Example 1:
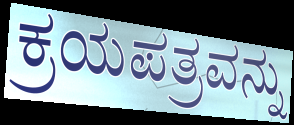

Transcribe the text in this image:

ಕ್ರಯಪತ್ರವನ್ನು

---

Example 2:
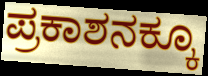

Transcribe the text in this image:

ಪ್ರಕಾಶನಕ್ಕೂ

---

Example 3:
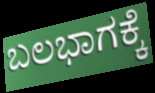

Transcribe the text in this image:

ಬಲಭಾಗಕ್ಕೆ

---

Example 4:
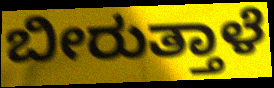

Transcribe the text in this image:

ಬೀರುತ್ತಾಳೆ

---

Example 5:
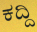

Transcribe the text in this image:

ಕದ್ದಿ